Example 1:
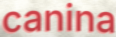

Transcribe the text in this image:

canina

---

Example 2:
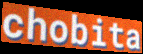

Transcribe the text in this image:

chobita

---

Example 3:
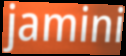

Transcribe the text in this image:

jamini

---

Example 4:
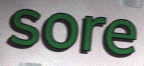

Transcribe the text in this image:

sore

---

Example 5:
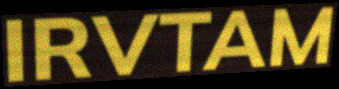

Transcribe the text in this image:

IRVTAM